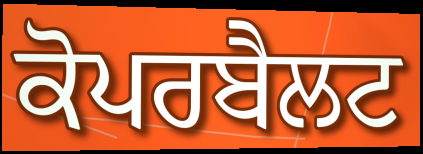
ਕੋਪਰਬੈਲਟ